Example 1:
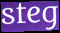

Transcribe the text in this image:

steg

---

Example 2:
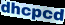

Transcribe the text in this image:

dhcpcd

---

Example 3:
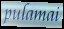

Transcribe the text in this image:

pulamai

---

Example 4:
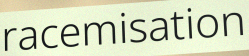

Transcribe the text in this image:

racemisation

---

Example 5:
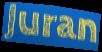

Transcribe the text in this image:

Juran